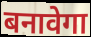
बनावेगा